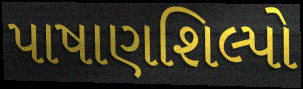
પાષાણશિલ્પો